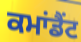
ਕਮਾਂਡੈਂਟ